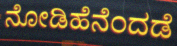
ನೋಡಿಹೆನೆಂದಡೆ